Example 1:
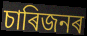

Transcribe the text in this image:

চাৰিজনৰ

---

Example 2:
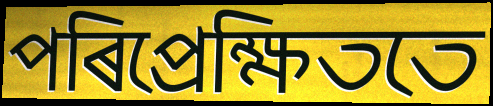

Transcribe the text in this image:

পৰিপ্ৰেক্ষিততে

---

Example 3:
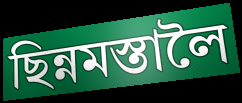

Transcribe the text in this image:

ছিন্নমস্তালৈ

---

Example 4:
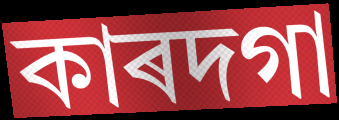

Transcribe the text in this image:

কাৰদগা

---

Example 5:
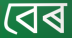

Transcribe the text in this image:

বেৰ